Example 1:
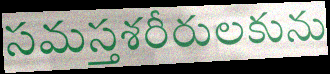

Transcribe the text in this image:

సమస్తశరీరులకును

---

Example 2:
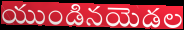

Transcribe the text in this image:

యుండినయెడల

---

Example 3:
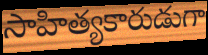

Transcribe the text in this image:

సాహిత్యకారుడుగా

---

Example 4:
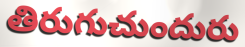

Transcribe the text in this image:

తిరుగుచుందురు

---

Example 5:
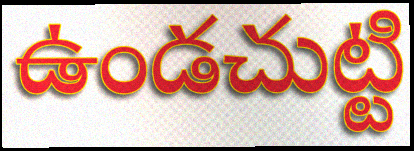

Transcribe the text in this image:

ఉండచుట్టి